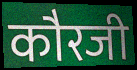
कौरजी